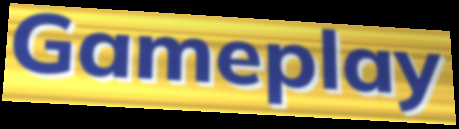
Gameplay